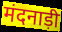
मंदनाड़ी